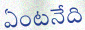
ఏంటనేది